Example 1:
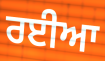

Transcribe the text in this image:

ਰਈਆ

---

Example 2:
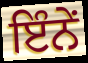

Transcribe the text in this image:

ਇੰਨੇਂ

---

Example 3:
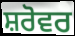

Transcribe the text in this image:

ਸ਼ਰੋਵਰ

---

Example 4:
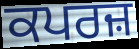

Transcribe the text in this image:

ਕਪਰਜ਼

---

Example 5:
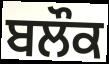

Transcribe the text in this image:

ਬਲੌਕ